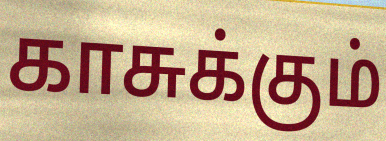
காசுக்கும்